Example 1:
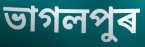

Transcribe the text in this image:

ভাগলপুৰ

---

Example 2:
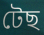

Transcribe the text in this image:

টেছ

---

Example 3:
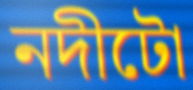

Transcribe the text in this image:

নদীটো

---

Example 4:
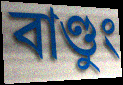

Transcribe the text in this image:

বাণ্ডুং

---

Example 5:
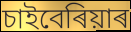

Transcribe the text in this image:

চাইবেৰিয়াৰ